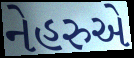
નેહરુએ